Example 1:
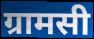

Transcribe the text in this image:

ग्रामसी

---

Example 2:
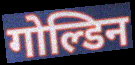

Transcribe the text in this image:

गोल्डिन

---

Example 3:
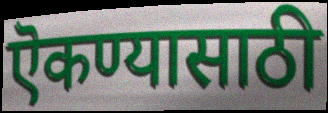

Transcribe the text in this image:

ऎकण्यासाठी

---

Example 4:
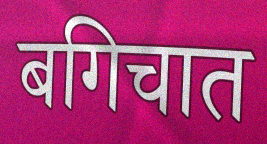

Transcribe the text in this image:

बगिचात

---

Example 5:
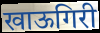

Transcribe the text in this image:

खाऊगिरी